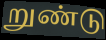
றுண்டு